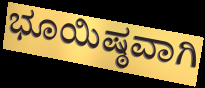
ಭೂಯಿಷ್ಠವಾಗಿ